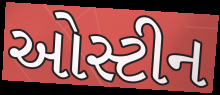
ઓસ્ટીન